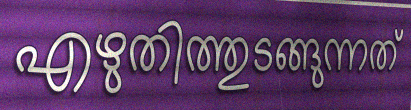
എഴുതിത്തുടങ്ങുന്നത്